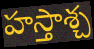
హస్తాశ్చ